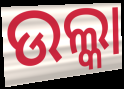
ଉଲ୍କା